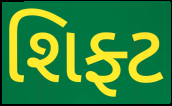
શિફ્ટ